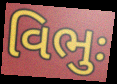
વિભુઃ